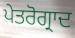
ਪੇਤਰੋਗ੍ਰਾਦ